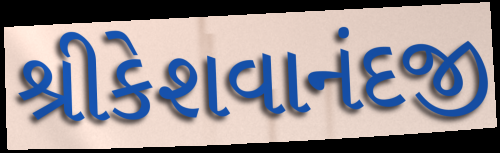
શ્રીકેશવાનંદજી